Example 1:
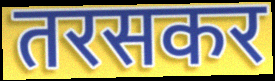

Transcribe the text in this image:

तरसकर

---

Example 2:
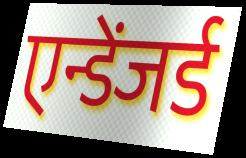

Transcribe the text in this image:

एन्डेंजर्ड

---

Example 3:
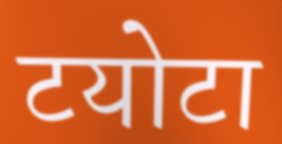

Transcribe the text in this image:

टयोटा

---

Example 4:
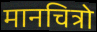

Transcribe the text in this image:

मानचित्रो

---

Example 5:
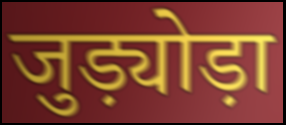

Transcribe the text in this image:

जुड़्योड़ा